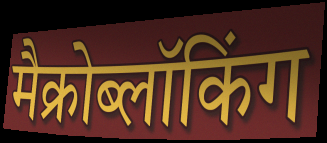
मैक्रोब्लॉकिंग